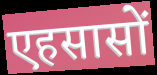
एहसासों